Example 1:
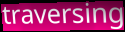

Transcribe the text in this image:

traversing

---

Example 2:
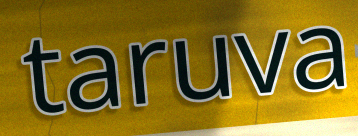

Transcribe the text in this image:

taruva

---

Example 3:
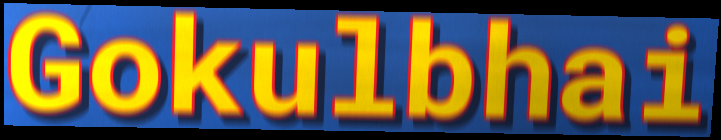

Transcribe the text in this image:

Gokulbhai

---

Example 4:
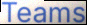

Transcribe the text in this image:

Teams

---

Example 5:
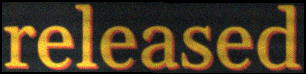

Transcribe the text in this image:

released